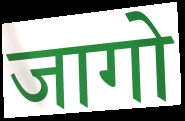
जागो